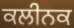
ਕਲੀਨਕ